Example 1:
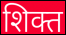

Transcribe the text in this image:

शिक्त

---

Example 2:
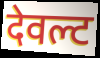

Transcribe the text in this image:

देवल्ट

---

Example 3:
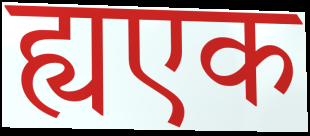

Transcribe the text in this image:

ह्यएक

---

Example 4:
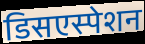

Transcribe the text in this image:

डिसएस्पेशन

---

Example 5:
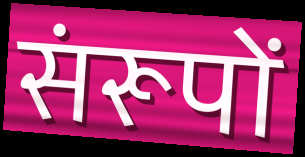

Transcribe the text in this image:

संरूपों